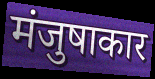
मंजुषाकार